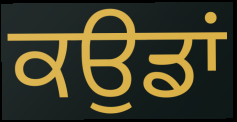
ਕਉਡਾਂ